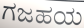
ಗಜಹಯ